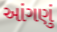
આંગણું